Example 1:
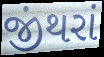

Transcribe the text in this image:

જીંથરાં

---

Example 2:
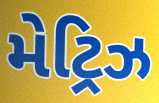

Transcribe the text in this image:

મેટ્રિઝ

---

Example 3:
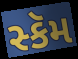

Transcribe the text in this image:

સ્કૅમ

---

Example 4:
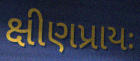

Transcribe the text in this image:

ક્ષીણપ્રાયઃ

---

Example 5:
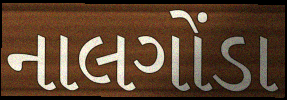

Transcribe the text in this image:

નાલગોંડા